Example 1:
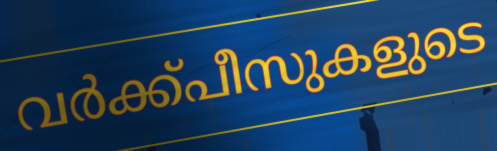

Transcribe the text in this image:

വർക്ക്പീസുകളുടെ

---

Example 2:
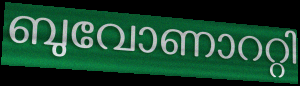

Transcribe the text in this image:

ബുവോണാററ്റി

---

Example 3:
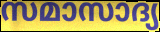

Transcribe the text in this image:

സമാസാദ്യ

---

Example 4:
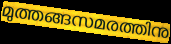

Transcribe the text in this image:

മുത്തങ്ങസമരത്തിനു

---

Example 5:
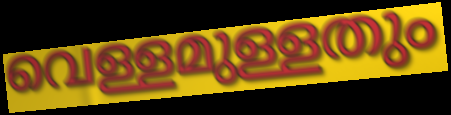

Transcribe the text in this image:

വെള്ളമുള്ളതും